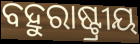
ବହୁରାଷ୍ଟ୍ରୀୟ